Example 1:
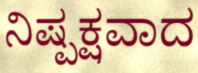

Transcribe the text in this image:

ನಿಷ್ಪಕ್ಷವಾದ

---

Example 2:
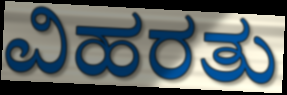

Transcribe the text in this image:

ವಿಹರತು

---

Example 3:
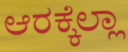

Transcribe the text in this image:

ಆರಕ್ಕೆಲ್ಲಾ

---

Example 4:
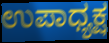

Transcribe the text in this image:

ಉಪಾಧ್ಯಕ್ಷ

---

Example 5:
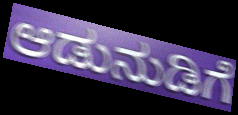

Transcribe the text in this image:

ಆಡುನುಡಿಗೆ